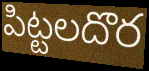
పిట్టలదొర